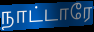
நாட்டாரே